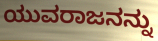
ಯುವರಾಜನನ್ನು